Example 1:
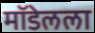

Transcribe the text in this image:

मॉडेलला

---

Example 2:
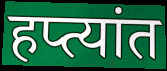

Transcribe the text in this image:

हप्त्यांत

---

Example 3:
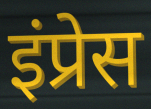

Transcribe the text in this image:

इंप्रेस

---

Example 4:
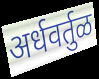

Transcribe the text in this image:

अर्धवर्तुळ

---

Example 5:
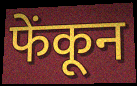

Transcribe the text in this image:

फेंकून